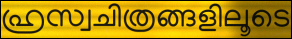
ഹ്രസ്വചിത്രങ്ങളിലൂടെ